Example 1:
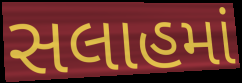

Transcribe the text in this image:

સલાહમાં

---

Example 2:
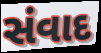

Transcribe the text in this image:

સંવાદ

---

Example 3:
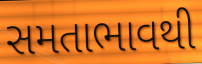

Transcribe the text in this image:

સમતાભાવથી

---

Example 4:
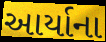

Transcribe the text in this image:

આર્યાના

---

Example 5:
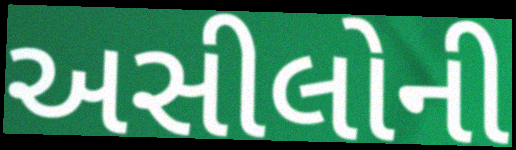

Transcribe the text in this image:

અસીલોની